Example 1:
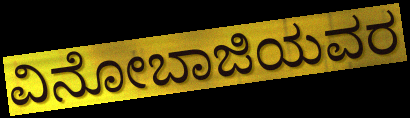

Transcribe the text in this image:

ವಿನೋಬಾಜಿಯವರ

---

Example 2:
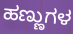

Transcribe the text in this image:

ಹಣ್ಣುಗಳ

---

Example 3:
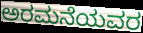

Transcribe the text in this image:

ಅರಮನೆಯವರ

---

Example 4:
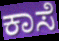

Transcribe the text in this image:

ಕಾಸೆ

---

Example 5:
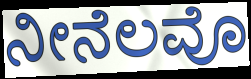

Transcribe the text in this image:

ನೀನೆಲವೊ